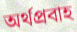
অর্থপ্রবাহ